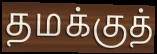
தமக்குத்